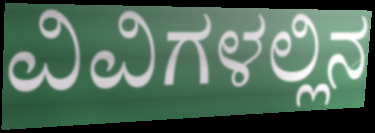
ವಿವಿಗಳಲ್ಲಿನ